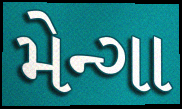
મેન્ગા